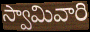
స్వామివారి